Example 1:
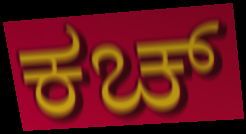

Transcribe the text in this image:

ಕಚ್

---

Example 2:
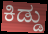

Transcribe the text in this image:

ಕಿಡ್ಡು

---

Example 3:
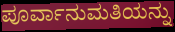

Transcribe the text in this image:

ಪೂರ್ವಾನುಮತಿಯನ್ನು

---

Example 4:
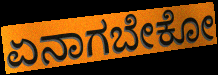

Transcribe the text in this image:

ಏನಾಗಬೇಕೋ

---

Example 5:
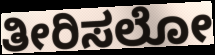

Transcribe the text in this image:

ತೀರಿಸಲೋ